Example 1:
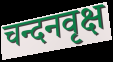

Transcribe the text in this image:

चन्दनवृक्ष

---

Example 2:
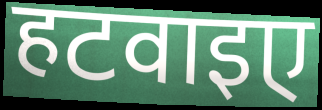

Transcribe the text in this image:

हटवाइए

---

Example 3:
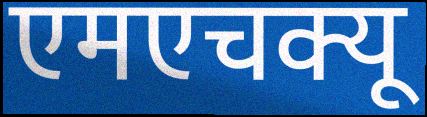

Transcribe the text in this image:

एमएचक्यू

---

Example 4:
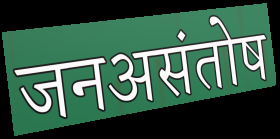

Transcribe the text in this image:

जनअसंतोष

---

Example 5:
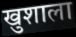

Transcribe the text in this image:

खुशाला